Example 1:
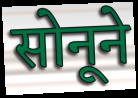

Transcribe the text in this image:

सोनूने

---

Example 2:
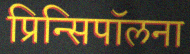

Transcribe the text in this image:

प्रिन्सिपॉलना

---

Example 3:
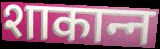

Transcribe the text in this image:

शाकान्न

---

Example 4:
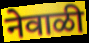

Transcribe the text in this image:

नेवाळी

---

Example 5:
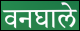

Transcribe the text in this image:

वनघाले